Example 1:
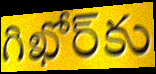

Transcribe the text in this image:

గిఖోర్‌కు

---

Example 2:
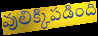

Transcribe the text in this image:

వులిక్కిపడింది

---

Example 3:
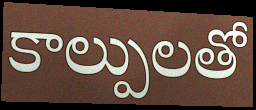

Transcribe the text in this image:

కాల్పులతో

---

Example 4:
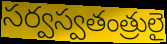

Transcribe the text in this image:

సర్వస్వతంత్రులై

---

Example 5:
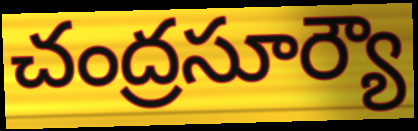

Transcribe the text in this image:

చంద్రసూర్యౌ